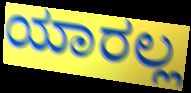
ಯಾರಲ್ಲ